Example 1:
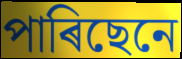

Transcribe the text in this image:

পাৰিছেনে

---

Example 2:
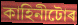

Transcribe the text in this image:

কাহিনীটোৰ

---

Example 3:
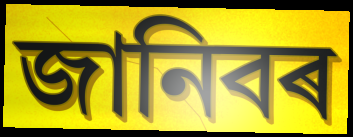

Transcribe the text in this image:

জানিবৰ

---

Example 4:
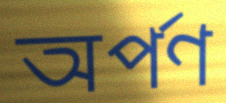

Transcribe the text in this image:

অৰ্পণ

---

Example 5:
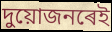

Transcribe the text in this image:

দুয়োজনৰেই